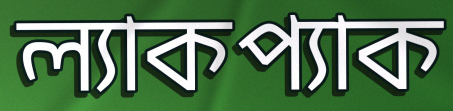
ল্যাকপ্যাক